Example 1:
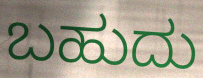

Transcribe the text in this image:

ಬಹುದು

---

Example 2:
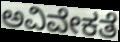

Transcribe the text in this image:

ಅವಿವೇಕತೆ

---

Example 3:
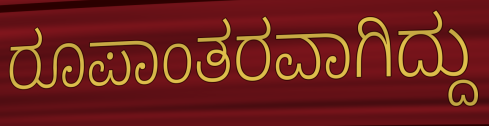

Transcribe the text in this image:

ರೂಪಾಂತರವಾಗಿದ್ದು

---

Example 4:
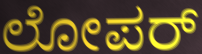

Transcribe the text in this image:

ಲೋಪರ್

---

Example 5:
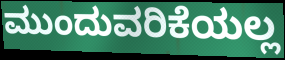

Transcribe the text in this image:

ಮುಂದುವರಿಕೆಯಲ್ಲ